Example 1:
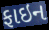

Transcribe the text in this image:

ફાઇન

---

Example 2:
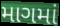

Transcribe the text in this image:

માગમાં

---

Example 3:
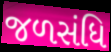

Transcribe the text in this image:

જળસંધિ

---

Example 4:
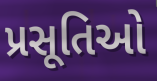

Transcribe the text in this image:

પ્રસૂતિઓ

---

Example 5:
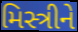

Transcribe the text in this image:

મિસ્ત્રીને